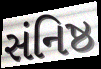
સંનિષ્ઠ